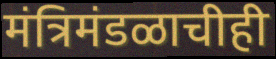
मंत्रिमंडळाचीही